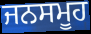
ਜਨਸਮੂਹ